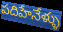
పదిహేనేళ్ళు